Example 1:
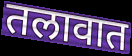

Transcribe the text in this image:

तलावात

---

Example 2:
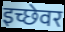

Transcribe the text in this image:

इच्छेवर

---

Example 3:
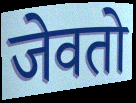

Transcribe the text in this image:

जेवतो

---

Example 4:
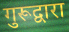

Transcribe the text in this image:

गुरूद्वारा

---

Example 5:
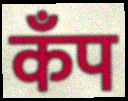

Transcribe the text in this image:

कॅंप